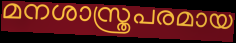
മനശാസ്ത്രപരമായ